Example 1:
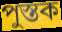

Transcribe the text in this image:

পুস্তক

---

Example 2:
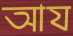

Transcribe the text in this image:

আয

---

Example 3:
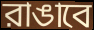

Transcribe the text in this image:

রাঙাবে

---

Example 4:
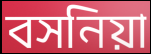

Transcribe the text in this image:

বসনিয়া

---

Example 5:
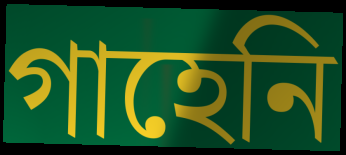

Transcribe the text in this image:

গাহেনি